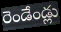
రెండేండ్లు